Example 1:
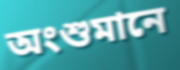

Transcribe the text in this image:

অংশুমানে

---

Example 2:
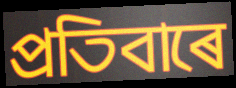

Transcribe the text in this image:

প্ৰতিবাৰে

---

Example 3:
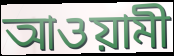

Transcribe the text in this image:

আওয়ামী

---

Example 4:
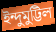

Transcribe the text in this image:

ইন্দুমুট্টিল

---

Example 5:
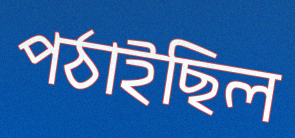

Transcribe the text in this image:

পঠাইছিল